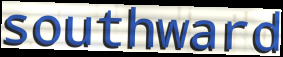
southward